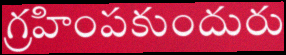
గ్రహింపకుందురు